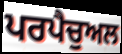
ਪਰਪੈਚੁਅਲ